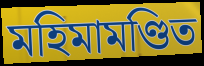
মহিমামণ্ডিত